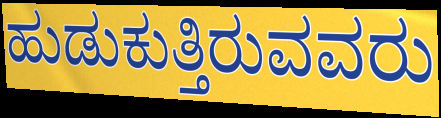
ಹುಡುಕುತ್ತಿರುವವರು